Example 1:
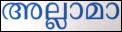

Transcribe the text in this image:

അല്ലാമാ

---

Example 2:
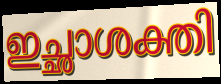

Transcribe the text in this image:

ഇച്ഛാശക്തി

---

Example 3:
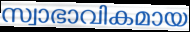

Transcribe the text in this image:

സ്വാഭാവികമായ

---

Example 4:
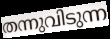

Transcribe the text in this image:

തന്നുവിടുന്ന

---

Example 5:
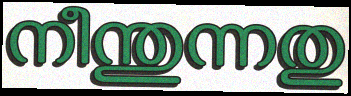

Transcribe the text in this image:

നീന്തുന്നതു